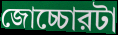
জোচ্চোরটা